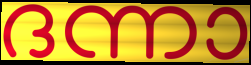
ദന്നാ